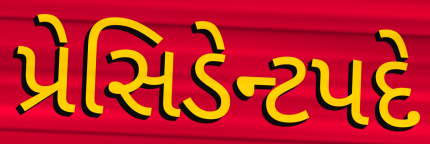
પ્રેસિડેન્ટપદે